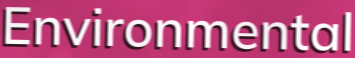
Environmental